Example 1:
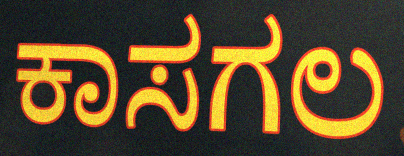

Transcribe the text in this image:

ಕಾಸಗಲ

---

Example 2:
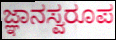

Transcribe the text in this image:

ಜ್ಞಾನಸ್ವರೂಪ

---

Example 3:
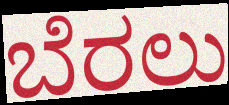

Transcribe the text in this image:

ಬೆರಲು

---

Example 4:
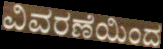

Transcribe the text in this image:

ವಿವರಣೆಯಿಂದ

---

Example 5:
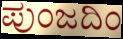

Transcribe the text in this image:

ಪುಂಜದಿಂ